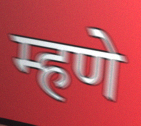
म्हणे